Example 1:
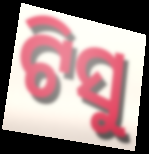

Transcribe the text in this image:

ଟିସୁ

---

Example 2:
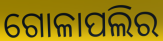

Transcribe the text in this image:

ଗୋଳାପଲିର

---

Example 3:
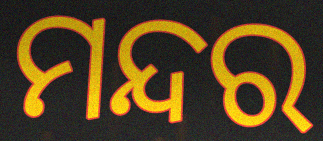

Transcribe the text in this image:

ମନ୍ଦର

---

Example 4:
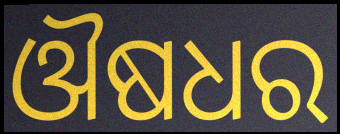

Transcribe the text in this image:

ଔଷଧର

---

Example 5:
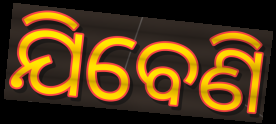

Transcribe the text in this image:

ଯିବେଣି